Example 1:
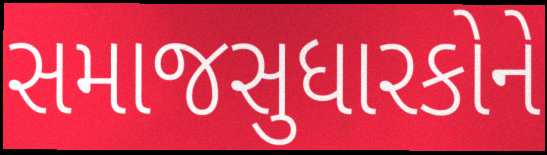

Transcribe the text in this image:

સમાજસુધારકોને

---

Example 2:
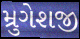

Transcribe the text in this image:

મ્રુગેશજી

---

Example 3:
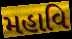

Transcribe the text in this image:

મહાવિ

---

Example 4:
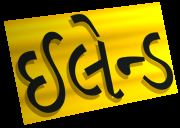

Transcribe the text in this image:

ઈલેન્ડ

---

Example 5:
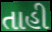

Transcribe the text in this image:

તાહી